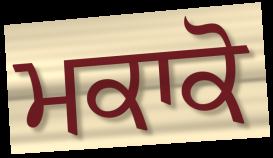
ਮਕਾਕੋ